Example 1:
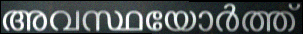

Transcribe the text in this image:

അവസ്ഥയോർത്ത്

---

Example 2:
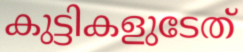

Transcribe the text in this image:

കുട്ടികളുടേത്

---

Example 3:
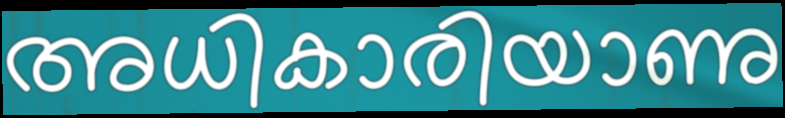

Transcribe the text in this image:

അധികാരിയാണു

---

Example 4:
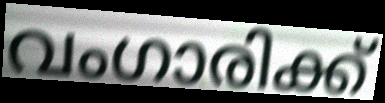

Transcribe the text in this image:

വംഗാരിക്ക്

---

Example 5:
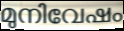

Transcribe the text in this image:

മുനിവേഷം